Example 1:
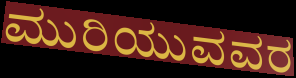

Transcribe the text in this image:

ಮುರಿಯುವವರ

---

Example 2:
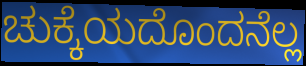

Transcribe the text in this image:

ಚುಕ್ಕೆಯದೊಂದನೆಲ್ಲ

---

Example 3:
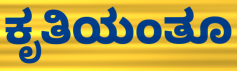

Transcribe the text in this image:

ಕೃತಿಯಂತೂ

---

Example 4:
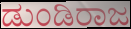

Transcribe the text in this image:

ಡುಂಡಿರಾಜ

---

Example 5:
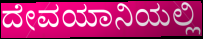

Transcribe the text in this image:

ದೇವಯಾನಿಯಲ್ಲಿ